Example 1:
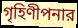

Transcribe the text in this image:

গৃহিণীপনার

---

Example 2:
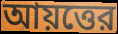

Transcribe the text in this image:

আয়ত্তের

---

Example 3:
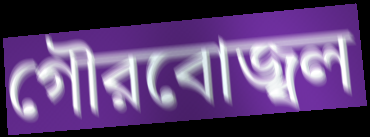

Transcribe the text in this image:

গৌরবোজ্বল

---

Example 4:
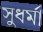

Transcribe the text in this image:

সুধর্মা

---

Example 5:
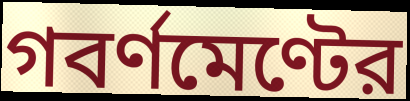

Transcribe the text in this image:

গবর্ণমেণ্টের